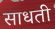
साधती